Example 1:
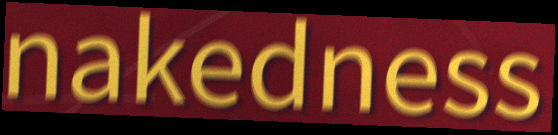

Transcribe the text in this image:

nakedness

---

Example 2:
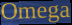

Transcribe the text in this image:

Omega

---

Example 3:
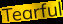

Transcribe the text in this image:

Tearful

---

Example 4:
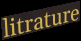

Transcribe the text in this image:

litrature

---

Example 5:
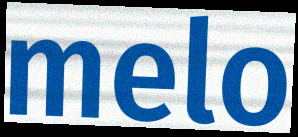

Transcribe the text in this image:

melo